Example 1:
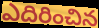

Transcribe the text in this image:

ఎదిరించిన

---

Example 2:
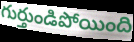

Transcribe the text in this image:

గుర్తుండిపోయింది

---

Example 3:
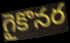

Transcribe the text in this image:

గైకొనర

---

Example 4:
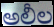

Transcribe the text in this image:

అలీల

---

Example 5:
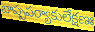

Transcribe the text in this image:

బాష్పపర్యాకులేక్షణః